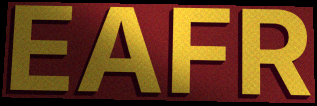
EAFR